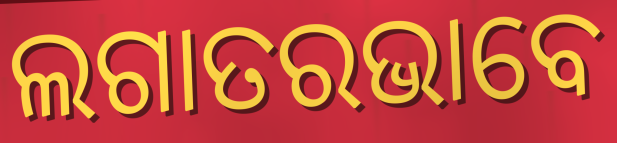
ଲଗାତରଭାବେ